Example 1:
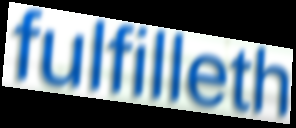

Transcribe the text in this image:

fulfilleth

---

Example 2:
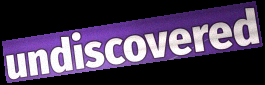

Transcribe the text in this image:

undiscovered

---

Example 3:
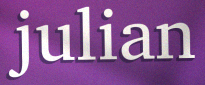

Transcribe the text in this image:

julian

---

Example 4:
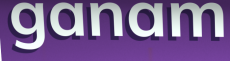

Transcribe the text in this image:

ganam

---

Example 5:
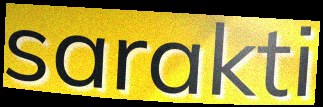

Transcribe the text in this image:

sarakti